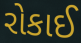
રોકાઈ